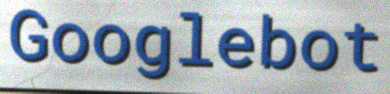
Googlebot